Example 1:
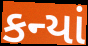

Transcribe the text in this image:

કન્યાં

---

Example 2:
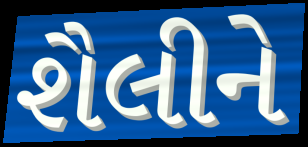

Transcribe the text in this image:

શૈલીને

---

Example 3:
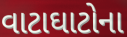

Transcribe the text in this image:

વાટાઘાટોના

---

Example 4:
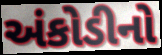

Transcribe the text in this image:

અંકોડીનો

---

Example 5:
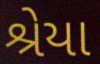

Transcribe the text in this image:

શ્રેયા